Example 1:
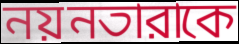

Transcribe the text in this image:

নয়নতারাকে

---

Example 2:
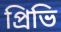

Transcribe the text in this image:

প্রিভি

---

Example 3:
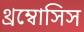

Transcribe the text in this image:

থ্রম্বোসিস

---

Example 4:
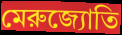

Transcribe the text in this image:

মেরুজ্যোতি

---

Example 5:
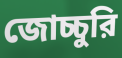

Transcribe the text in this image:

জোচ্চুরি